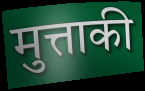
मुत्ताकी